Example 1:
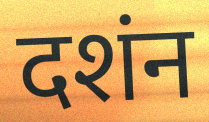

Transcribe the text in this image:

दशंन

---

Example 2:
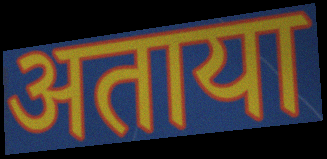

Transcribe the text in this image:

अताया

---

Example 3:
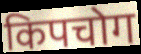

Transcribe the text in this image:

किपचोग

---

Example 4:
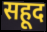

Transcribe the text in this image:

सहूद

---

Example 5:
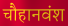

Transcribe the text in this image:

चौहानवंश